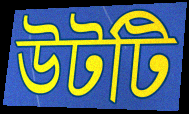
উটটি